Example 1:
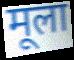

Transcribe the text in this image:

मूला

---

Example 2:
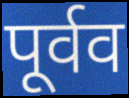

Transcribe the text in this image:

पूर्वव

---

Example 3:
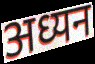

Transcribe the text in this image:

अध्यन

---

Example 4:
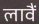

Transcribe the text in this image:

लावैं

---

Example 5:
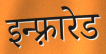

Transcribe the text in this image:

इन्फ़्रारेड